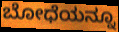
ಬೋಧೆಯನ್ನೂ